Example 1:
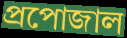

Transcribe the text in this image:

প্রপোজাল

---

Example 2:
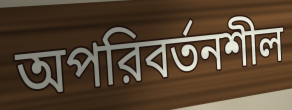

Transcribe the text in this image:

অপরিবর্তনশীল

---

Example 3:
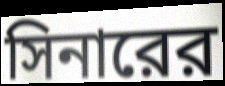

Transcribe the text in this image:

সিনারের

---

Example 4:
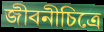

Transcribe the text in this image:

জীবনীচিত্রে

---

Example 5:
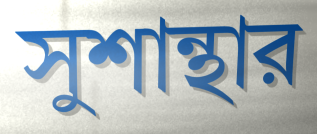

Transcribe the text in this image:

সুশান্থার